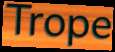
Trope